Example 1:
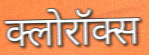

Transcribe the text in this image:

क्लोरॉक्स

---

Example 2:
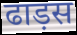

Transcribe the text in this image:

ढाड़स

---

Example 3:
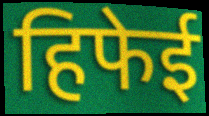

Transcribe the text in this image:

हिफेई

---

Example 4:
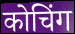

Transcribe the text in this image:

कोचिंग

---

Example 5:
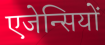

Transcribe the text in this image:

एजेन्सियों